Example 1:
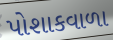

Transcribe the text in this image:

પોશાકવાળા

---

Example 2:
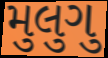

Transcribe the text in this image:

મુલુગુ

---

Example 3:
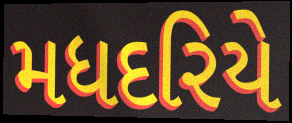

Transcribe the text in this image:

મધદરિયે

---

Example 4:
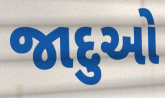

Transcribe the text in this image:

જાદુઓ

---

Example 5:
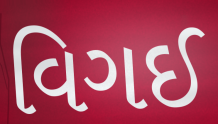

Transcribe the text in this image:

વિગઈ